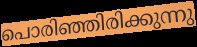
പൊരിഞ്ഞിരിക്കുന്നു